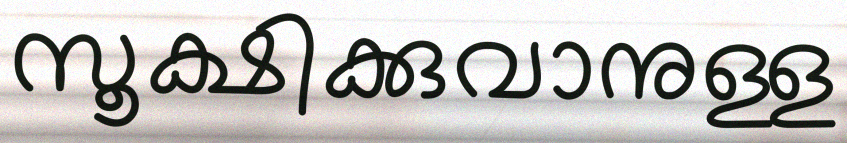
സൂക്ഷിക്കുവാനുള്ള